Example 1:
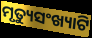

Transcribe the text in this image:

ମୃତ୍ୟୁସଂଖ୍ୟାଟି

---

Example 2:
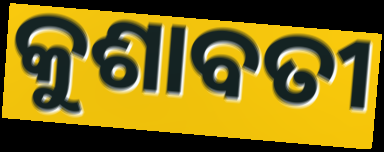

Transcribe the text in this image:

କୁଶାବତୀ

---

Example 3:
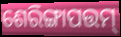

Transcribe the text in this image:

ଶେରିଙ୍ଗାପତ୍ତମ୍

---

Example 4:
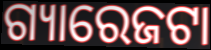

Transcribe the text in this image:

ଗ୍ୟାରେଜଟା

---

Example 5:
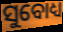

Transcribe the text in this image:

ସୁବୋଧ୍ୟ